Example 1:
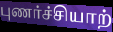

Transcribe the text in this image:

புணர்ச்சியாற்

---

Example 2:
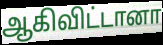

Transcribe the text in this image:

ஆகிவிட்டானா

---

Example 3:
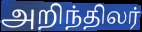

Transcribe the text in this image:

அறிந்திலர்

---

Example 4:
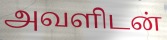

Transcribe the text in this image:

அவளிடன்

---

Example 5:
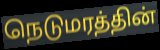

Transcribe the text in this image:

நெடுமரத்தின்